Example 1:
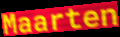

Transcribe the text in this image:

Maarten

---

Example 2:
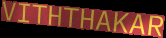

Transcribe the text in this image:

VITHTHAKAR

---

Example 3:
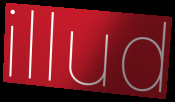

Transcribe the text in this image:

illud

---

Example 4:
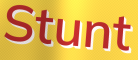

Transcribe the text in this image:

Stunt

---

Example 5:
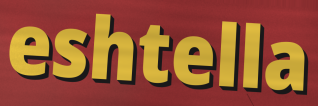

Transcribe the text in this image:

eshtella